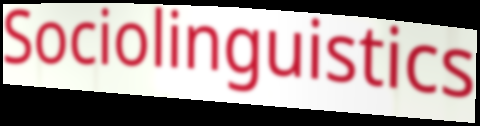
Sociolinguistics